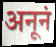
अनूनं